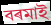
বৰমাই